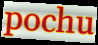
pochu